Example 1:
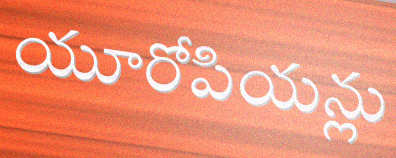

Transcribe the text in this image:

యూరోపియన్లు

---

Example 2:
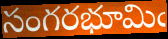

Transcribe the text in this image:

సంగరభూమిఁ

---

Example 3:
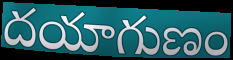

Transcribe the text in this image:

దయాగుణం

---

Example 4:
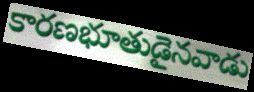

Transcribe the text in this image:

కారణభూతుడైనవాడు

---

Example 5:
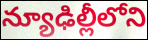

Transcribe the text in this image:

న్యూఢిల్లీలోని